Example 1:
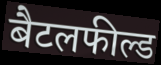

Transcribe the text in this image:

बैटलफील्ड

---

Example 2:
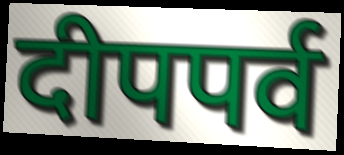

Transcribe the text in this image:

दीपपर्व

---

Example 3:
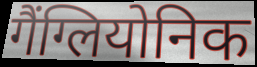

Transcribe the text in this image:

गैंग्लियोनिक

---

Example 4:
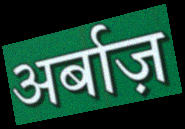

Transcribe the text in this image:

अर्बाज़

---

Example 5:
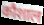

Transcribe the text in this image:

कौशाल